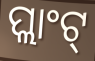
ପ୍ଲାଂଟ୍